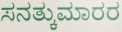
ಸನತ್ಕುಮಾರರ